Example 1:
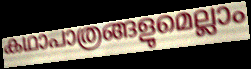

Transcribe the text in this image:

കഥാപാത്രങ്ങളുമെല്ലാം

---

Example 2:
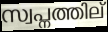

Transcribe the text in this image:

സ്വപ്നത്തില്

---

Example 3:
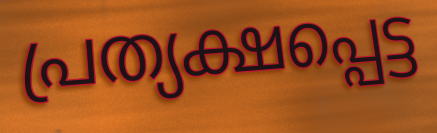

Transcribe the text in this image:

പ്രത്യക്ഷപ്പെട്ട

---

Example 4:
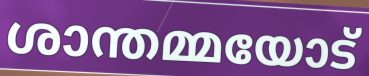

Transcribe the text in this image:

ശാന്തമ്മയോട്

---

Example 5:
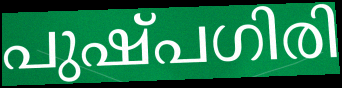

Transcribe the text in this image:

പുഷ്പഗിരി